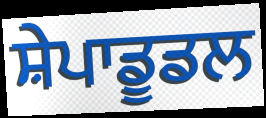
ਸ਼ੇਪਾਡੂਡਲ